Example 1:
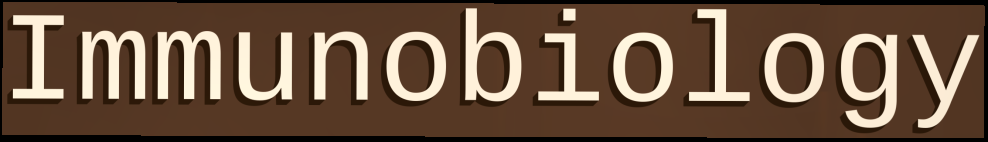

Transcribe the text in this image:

Immunobiology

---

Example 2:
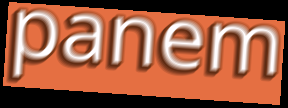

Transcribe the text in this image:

panem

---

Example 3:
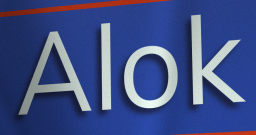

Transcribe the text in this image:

Alok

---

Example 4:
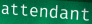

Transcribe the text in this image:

attendant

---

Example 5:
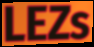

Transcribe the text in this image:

LEZs